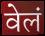
वेलं